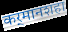
कर्मानशहा